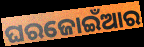
ଘରଜୋଇଁଆର